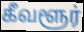
கீவளூர்